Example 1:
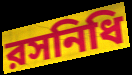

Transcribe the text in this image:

রসনিধি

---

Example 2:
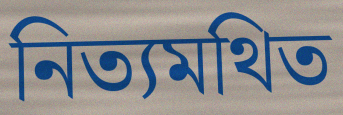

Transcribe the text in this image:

নিত্যমথিত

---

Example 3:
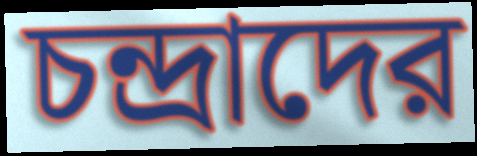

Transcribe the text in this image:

চন্দ্রাদের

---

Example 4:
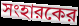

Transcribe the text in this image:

সংহারকের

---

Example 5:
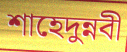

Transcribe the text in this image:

শাহেদুন্নবী